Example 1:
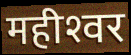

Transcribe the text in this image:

महीश्वर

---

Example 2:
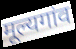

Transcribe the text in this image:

मूल्यगांव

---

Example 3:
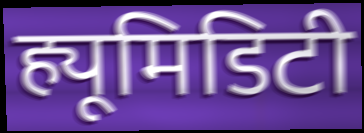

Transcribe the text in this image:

ह्यूमिडिटी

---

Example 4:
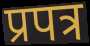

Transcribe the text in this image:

प्रपत्र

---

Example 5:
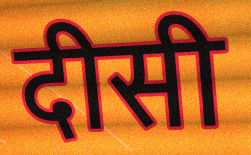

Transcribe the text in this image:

दीसी